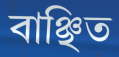
বাঞ্ছিত